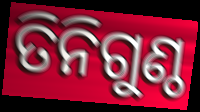
ତିନିଗୁଣ୍ଠ